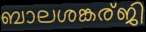
ബാലശങ്കര്ജി